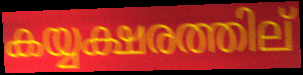
കയ്യക്ഷരത്തില്